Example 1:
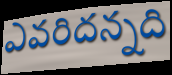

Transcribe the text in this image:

ఎవరిదన్నది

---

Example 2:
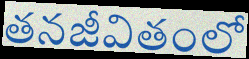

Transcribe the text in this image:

తనజీవితంలో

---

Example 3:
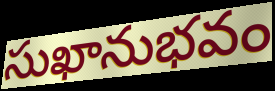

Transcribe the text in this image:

సుఖానుభవం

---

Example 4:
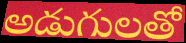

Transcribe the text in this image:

అడుగులతో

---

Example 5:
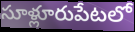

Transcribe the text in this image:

సూళ్లూరుపేటలో